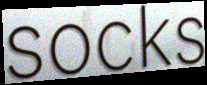
socks